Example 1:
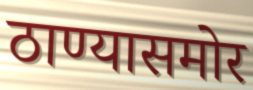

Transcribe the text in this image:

ठाण्यासमोर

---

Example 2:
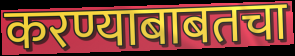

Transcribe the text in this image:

करण्याबाबतचा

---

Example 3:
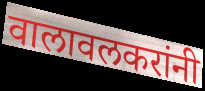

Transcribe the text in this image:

वालावलकरांनी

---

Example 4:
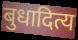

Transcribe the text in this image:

बुधादित्य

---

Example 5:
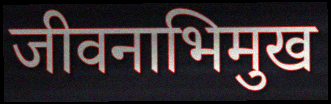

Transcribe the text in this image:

जीवनाभिमुख